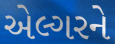
એલ્ગરને